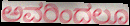
ಅವರಿಂದಲೂ